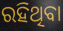
ରହିଥିବା